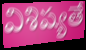
విశిష్యతే